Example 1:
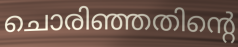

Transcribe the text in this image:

ചൊരിഞ്ഞതിന്റെ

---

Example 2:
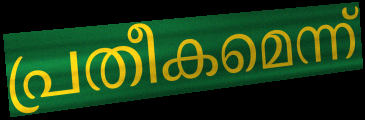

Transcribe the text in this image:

പ്രതീകമെന്ന്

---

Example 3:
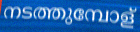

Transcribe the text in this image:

നടത്തുമ്പോള്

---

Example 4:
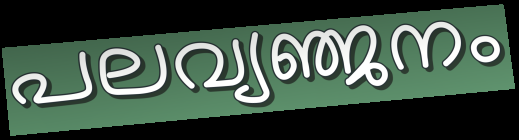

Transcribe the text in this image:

പലവ്യഞ്ജനം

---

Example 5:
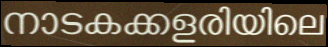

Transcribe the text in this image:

നാടകക്കളരിയിലെ